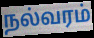
நல்வரம்